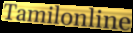
Tamilonline